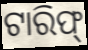
ଟାରିଫ୍